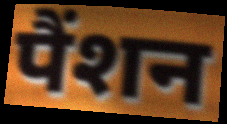
पैंशन